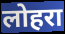
लोहरा